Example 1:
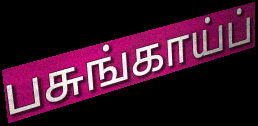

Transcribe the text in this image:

பசுங்காய்ப்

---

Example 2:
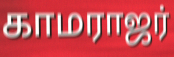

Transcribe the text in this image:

காமராஜர்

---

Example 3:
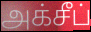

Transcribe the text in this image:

அக்சீப்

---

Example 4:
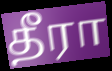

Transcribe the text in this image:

தீரா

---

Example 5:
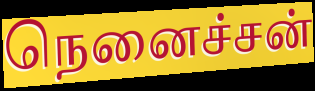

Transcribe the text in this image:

நெனைச்சன்